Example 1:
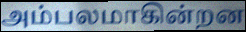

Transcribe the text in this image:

அம்பலமாகின்றன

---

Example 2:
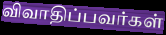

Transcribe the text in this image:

விவாதிப்பவர்கள்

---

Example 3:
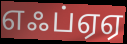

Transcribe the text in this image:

எஃப்ஏஏ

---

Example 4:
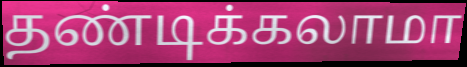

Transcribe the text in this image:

தண்டிக்கலாமா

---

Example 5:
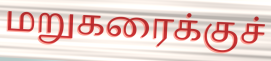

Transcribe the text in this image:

மறுகரைக்குச்